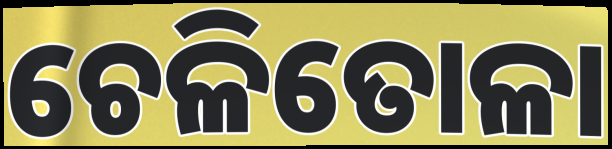
ଚେଳିତୋଳା